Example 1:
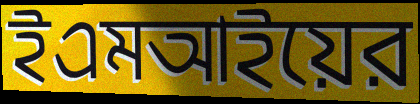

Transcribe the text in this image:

ইএমআইয়ের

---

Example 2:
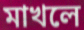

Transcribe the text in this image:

মাখলে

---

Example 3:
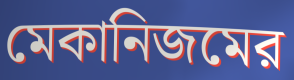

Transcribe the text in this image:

মেকানিজমের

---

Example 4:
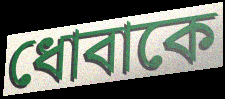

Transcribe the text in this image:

ধোবাকে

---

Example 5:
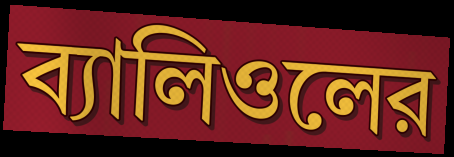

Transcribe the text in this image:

ব্যালিওলের